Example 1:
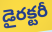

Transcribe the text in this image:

డైరక్టరీ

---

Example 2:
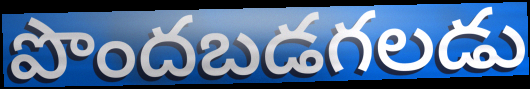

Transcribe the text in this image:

పొందబడగలడు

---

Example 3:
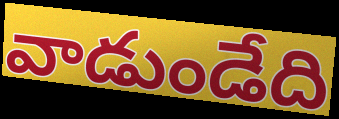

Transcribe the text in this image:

వాడుండేది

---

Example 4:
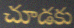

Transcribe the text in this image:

చూడకు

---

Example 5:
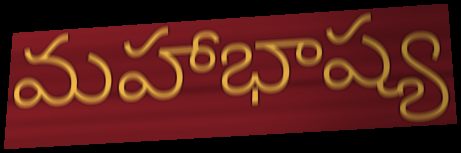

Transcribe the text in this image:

మహాభాష్య